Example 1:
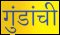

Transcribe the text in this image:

गुंडांची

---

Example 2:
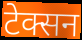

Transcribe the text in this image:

टेक्सन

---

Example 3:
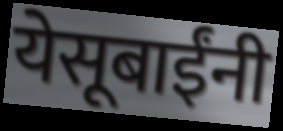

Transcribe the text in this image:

येसूबाईंनी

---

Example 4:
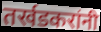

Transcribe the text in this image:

तर्खडकरांनी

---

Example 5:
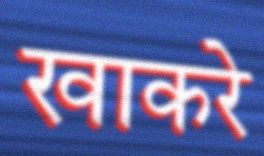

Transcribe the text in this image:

खाकरे